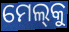
ମେଲ୍‌କୁ